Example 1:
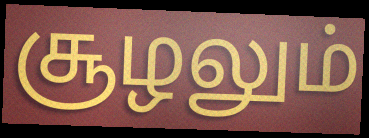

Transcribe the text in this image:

சூழலும்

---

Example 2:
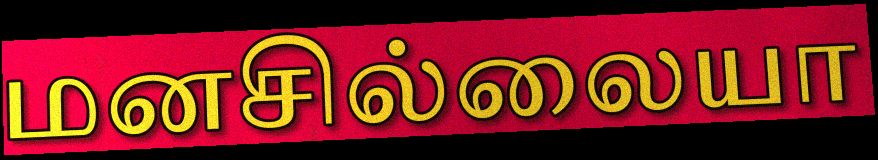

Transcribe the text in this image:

மனசில்லையா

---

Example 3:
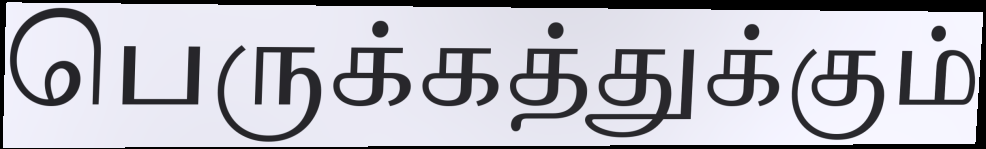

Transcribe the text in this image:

பெருக்கத்துக்கும்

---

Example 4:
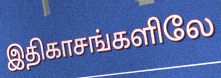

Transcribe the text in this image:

இதிகாசங்களிலே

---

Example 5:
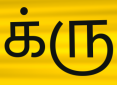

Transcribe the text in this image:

க்ரு